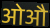
ओऔ